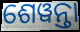
ଶେୱନ୍ତା